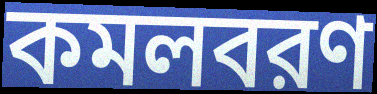
কমলবরণ